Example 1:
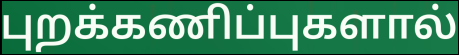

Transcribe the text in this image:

புறக்கணிப்புகளால்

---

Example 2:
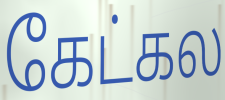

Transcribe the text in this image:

கேட்கல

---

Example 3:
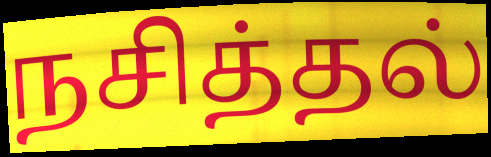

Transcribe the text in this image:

நசித்தல்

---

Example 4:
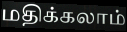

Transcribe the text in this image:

மதிக்கலாம்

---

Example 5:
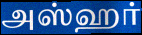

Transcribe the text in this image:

அஸ்ஹர்